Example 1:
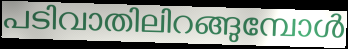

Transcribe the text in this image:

പടിവാതിലിറങ്ങുമ്പോൾ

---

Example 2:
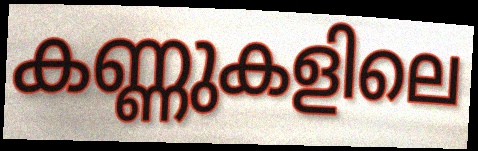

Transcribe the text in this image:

കണ്ണുകളിലെ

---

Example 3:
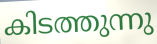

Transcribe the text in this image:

കിടത്തുന്നു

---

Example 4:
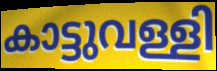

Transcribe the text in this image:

കാട്ടുവള്ളി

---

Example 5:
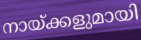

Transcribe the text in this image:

നായ്ക്കളുമായി